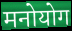
मनोयोग